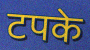
टपके